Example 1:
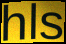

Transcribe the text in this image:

hls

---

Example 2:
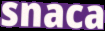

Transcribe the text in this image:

snaca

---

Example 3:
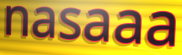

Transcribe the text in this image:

nasaaa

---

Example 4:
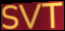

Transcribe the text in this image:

SVT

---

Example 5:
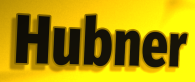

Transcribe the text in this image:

Hubner